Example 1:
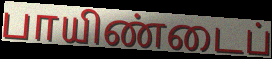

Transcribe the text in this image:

பாயிண்டைப்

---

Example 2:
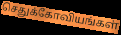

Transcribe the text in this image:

செதுக்கோவியங்கள்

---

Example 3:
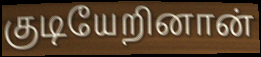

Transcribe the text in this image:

குடியேறினான்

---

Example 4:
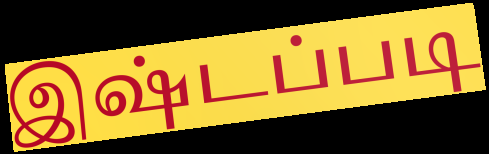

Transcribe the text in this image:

இஷ்டப்படி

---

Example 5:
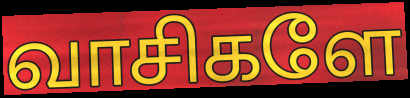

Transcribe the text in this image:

வாசிகளே